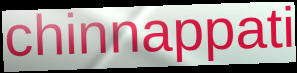
chinnappati